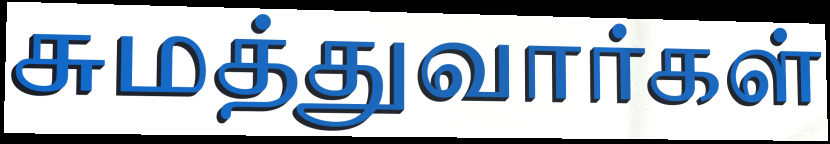
சுமத்துவார்கள்